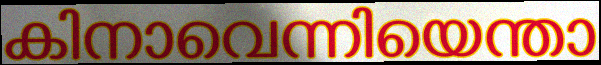
കിനാവെന്നിയെന്താ